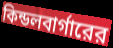
কিন্ডলবার্গারের